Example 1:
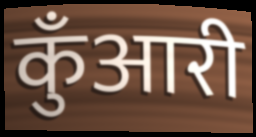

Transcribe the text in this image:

कुँआरी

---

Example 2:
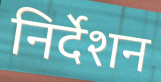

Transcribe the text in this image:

निर्देशन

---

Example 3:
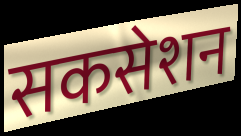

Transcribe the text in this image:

सकसेशन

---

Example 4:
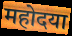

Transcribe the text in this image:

महोदया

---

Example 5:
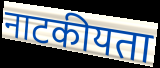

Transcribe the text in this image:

नाटकीयता